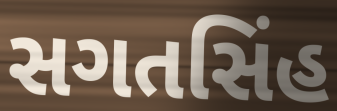
સગતસિંહ